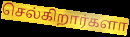
செல்கிறார்களா